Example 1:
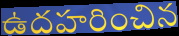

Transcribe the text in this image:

ఉదహరించిన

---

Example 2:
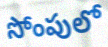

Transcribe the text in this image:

సోంపులో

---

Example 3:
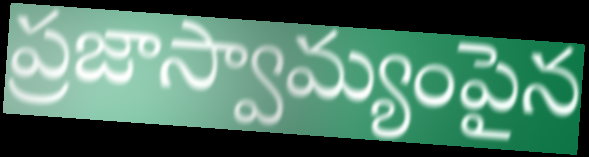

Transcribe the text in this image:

ప్రజాస్వామ్యంపైన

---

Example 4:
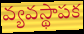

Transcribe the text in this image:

వ్యవస్థాపక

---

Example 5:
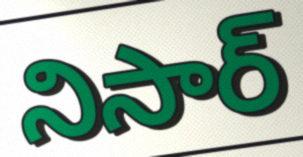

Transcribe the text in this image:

నిసార్